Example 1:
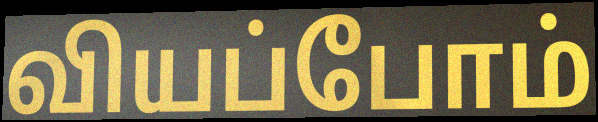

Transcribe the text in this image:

வியப்போம்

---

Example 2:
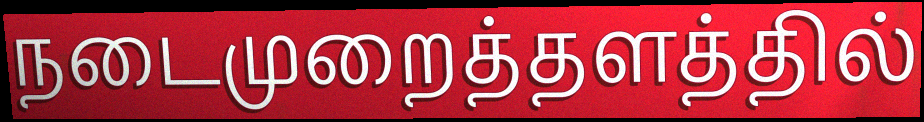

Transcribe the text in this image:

நடைமுறைத்தளத்தில்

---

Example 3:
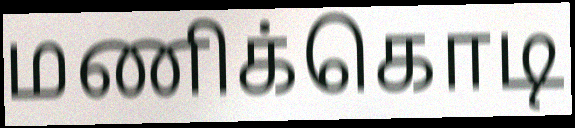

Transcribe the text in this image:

மணிக்கொடி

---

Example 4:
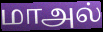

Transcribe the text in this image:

மாஅல்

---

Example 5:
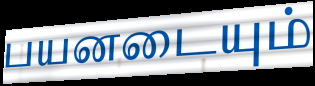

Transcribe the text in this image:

பயனடையும்